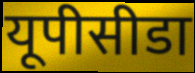
यूपीसीडा